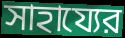
সাহায্যের